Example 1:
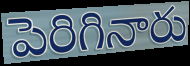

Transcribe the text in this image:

పెరిగినారు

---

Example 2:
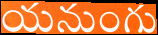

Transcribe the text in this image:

యనుంగు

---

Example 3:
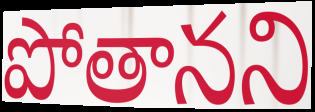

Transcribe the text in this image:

పోతానని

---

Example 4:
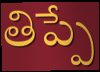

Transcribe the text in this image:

తిప్పే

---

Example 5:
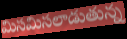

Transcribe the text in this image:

మిసమిసలాడుతున్న